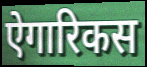
ऐगारिकस